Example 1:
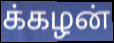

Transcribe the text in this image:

க்கழன்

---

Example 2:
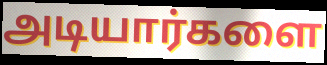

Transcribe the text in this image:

அடியார்களை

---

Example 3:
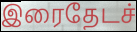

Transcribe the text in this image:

இரைதேடச்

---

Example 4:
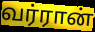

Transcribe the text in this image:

வர்ரான்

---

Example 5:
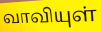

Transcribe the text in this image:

வாவியுள்